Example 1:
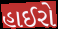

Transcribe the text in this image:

હાઈરો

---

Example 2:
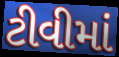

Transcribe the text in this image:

ટીવીમાં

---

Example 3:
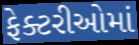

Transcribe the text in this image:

ફેક્ટરીઓમાં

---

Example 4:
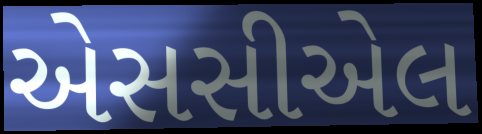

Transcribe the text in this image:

એસસીએલ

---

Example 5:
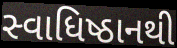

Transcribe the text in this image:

સ્વાધિષ્ઠાનથી